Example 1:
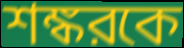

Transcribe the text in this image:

শঙ্করকে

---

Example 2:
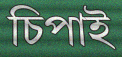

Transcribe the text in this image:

চিপাই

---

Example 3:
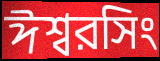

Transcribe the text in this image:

ঈশ্বরসিং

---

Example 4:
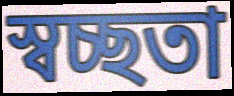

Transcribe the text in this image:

স্বচ্ছতা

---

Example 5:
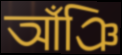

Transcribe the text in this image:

আঁঞি